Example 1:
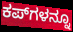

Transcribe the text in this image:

ಕಪ್‌ಗಳನ್ನೂ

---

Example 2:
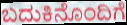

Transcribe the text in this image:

ಬದುಕಿನೊಂದಿಗೆ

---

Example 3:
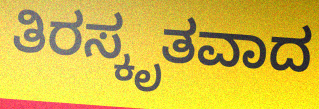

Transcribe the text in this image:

ತಿರಸ್ಕೃತವಾದ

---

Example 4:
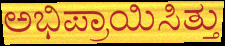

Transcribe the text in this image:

ಅಭಿಪ್ರಾಯಿಸಿತ್ತು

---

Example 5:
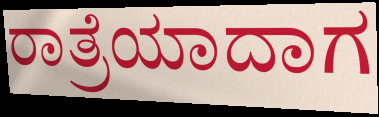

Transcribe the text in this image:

ರಾತ್ರೆಯಾದಾಗ